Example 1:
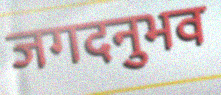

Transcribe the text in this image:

जगदनुभव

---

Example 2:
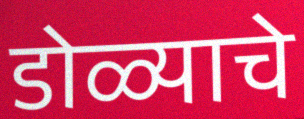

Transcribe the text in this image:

डोळ्याचे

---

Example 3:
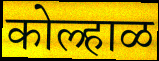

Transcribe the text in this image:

कोल्हाळ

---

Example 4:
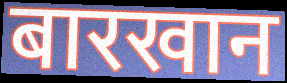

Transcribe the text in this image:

बारखान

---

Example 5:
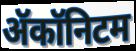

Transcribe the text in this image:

ॲकॉनिटम